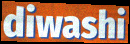
diwashi